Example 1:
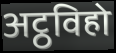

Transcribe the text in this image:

अट्ठविहो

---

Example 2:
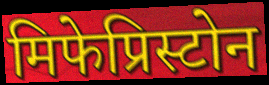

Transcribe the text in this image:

मिफेप्रिस्टोन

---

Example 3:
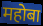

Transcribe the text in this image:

महोबा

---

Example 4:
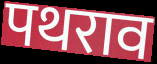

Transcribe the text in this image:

पथराव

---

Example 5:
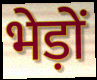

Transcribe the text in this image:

भेड़ों